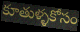
కూతుళ్ళకోసం